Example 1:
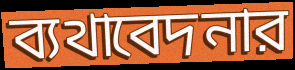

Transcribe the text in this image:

ব্যথাবেদনার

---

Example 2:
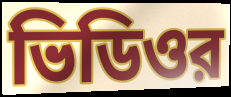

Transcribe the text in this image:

ভিডিওর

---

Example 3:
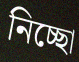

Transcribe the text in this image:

নিচ্ছো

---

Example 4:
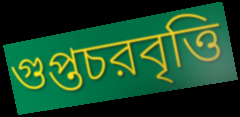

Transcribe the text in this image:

গুপ্তচরবৃত্তি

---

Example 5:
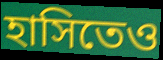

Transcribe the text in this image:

হাসিতেও